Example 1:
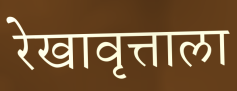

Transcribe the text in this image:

रेखावृत्ताला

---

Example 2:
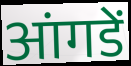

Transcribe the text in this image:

आंगडें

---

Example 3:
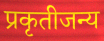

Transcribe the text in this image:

प्रकृतीजन्य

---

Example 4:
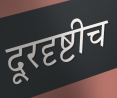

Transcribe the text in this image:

दूरदृष्टीच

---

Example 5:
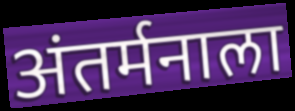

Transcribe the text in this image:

अंतर्मनाला